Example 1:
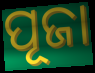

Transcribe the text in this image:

ପୂଜା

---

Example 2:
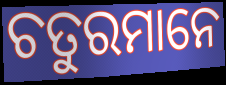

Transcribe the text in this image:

ଚତୁରମାନେ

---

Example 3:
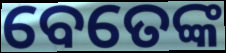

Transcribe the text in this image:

ବେତେଙ୍କ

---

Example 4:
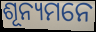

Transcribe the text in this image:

ଶୂନ୍ୟମନେ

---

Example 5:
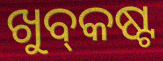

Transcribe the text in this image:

ଖୁବ୍‌କଷ୍ଟ